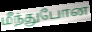
மீந்துபோன